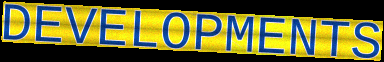
DEVELOPMENTS